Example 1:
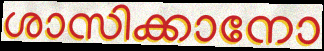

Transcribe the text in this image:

ശാസിക്കാനോ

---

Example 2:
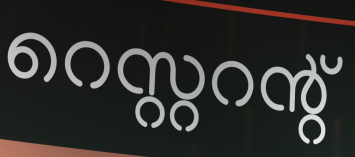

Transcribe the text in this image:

റെസ്റ്ററന്റ്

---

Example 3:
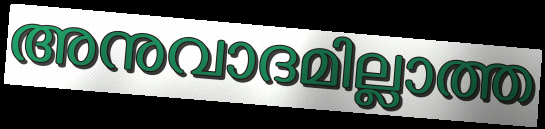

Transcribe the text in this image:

അനുവാദമില്ലാത്ത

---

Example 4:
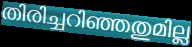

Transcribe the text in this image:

തിരിച്ചറിഞ്ഞതുമില്ല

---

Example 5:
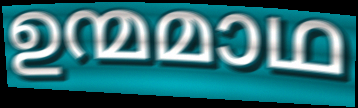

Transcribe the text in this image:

ഉന്മമാഥ